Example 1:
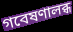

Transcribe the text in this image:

গবেষণালব্ধ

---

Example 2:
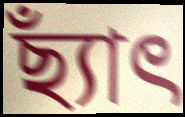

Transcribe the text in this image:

ছ্যাঁৎ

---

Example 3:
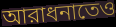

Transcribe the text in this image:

আরাধনাতেও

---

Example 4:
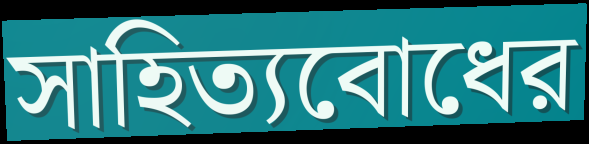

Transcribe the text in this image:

সাহিত্যবোধের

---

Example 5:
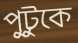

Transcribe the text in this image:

পুটুকে